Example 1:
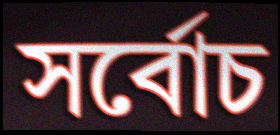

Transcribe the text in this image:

সৰ্বোচ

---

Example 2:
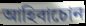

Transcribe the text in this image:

আহিবাচোন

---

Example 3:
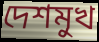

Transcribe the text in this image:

দেশমুখ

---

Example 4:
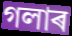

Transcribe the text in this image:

গলাৰ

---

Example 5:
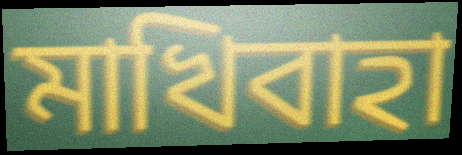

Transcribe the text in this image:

মাখিবাহা